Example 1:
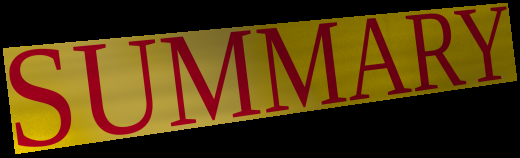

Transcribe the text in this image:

SUMMARY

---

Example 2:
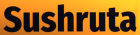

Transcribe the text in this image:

Sushruta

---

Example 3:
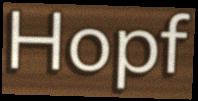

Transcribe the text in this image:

Hopf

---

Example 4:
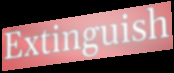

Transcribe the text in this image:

Extinguish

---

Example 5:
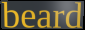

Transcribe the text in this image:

beard